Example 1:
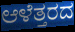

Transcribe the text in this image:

ಆಳೆತ್ತರದ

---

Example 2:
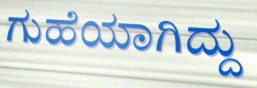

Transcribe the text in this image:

ಗುಹೆಯಾಗಿದ್ದು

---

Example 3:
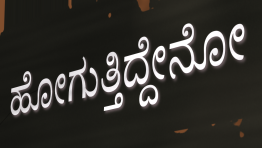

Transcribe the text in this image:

ಹೋಗುತ್ತಿದ್ದೇನೋ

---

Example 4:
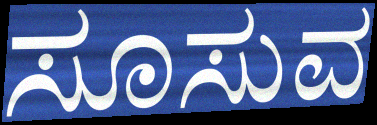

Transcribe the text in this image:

ಸೂಸುವ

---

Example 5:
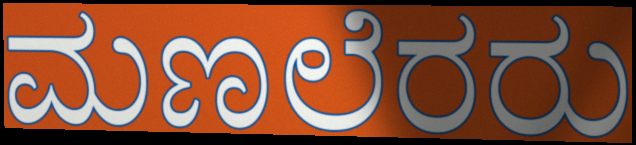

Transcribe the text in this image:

ಮಣಲೆರರು